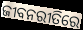
ଜୀବନରୀତିରେ